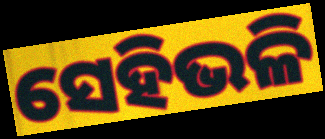
ସେହିଭଳି